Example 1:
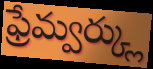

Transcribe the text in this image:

ఫ్రేమ్వర్క్లు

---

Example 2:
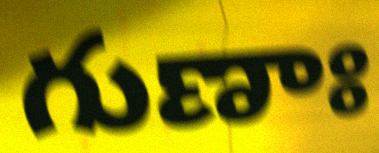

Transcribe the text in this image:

గుణాః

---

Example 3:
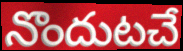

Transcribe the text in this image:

నొందుటచే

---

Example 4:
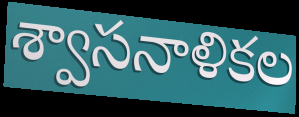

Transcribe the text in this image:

శ్వాసనాళికల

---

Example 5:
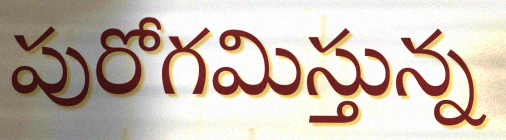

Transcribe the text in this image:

పురోగమిస్తున్న